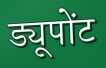
ड्यूपोंट